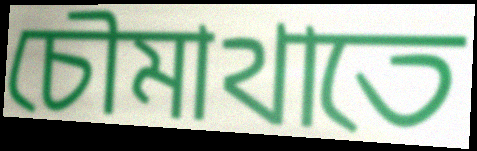
চৌমাথাতে